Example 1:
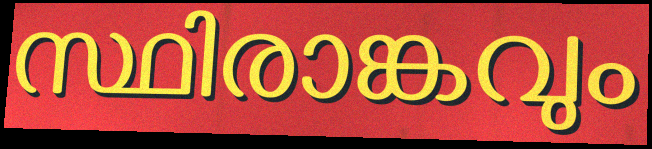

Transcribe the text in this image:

സ്ഥിരാങ്കവും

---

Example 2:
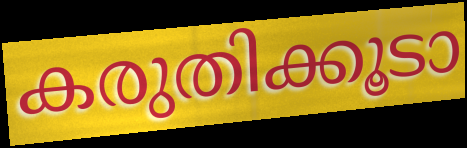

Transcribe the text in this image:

കരുതിക്കൂടാ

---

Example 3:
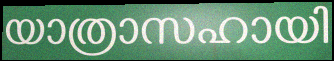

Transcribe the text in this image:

യാത്രാസഹായി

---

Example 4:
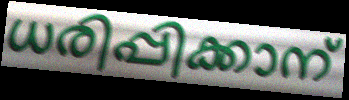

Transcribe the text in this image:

ധരിപ്പിക്കാന്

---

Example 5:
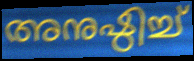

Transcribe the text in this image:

അനുഷ്ഠിച്ച്